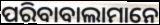
ପରିବାବାଲାମାନେ